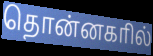
தொன்னகரில்